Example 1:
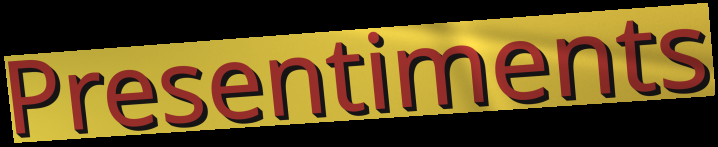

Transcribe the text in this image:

Presentiments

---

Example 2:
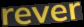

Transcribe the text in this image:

rever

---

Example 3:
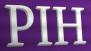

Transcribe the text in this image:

PIH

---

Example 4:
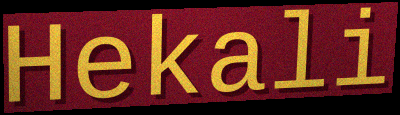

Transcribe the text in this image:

Hekali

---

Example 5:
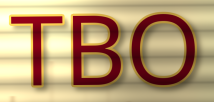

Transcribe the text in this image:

TBO